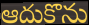
ఆదుకొను